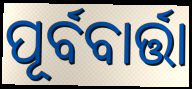
ପୂର୍ବବାର୍ତ୍ତା